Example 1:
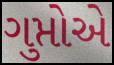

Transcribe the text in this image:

ગુપ્તોએ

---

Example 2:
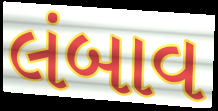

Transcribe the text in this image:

લંબાવ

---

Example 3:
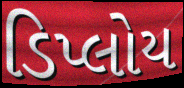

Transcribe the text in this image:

ડિપ્લોય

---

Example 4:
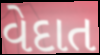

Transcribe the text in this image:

વેદાત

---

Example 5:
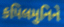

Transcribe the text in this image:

કપિલમુનિને